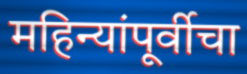
महिन्यांपूर्वीचा